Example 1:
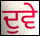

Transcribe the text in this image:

ਦੁਵੇ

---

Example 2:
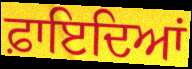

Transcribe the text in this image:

ਫ਼ਾਇਦਿਆਂ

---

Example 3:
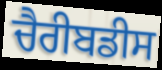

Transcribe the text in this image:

ਚੈਰੀਬਡੀਸ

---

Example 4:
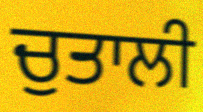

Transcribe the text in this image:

ਚੁਤਾਲੀ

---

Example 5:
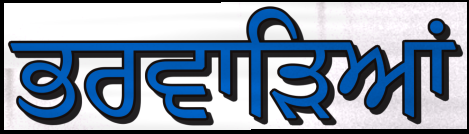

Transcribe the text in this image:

ਭਰਵਾੜਿਆਂ